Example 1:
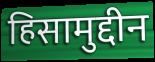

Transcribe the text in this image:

हिसामुद्दीन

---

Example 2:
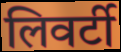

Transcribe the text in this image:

लिवर्टी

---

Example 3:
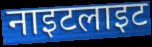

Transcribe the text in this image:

नाइटलाइट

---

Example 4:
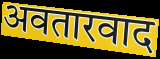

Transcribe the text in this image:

अवतारवाद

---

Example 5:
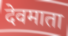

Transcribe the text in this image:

देवमाता